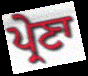
ਪ੍ਰੇਣਾ